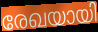
രേഖയായി